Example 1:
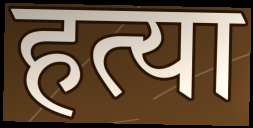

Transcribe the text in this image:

हत्‍या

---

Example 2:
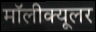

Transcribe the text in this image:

मॉलीक्यूलर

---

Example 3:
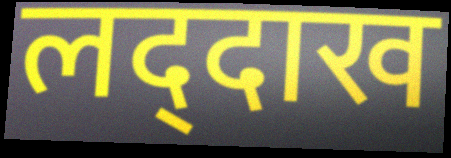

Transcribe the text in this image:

लद्‌दाख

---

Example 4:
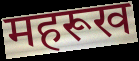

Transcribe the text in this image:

महरूख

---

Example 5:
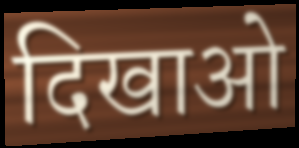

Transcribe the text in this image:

दिखाओ